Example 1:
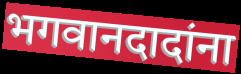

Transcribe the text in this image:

भगवानदादांना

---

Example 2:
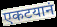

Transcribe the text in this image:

एकटयानं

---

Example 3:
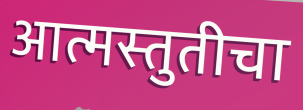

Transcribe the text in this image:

आत्मस्तुतीचा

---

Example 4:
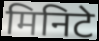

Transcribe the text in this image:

मिनिटे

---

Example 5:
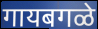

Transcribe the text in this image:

गायबगळे